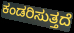
ಕಂಡರಿಸುತ್ತದೆ